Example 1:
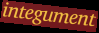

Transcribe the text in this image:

integument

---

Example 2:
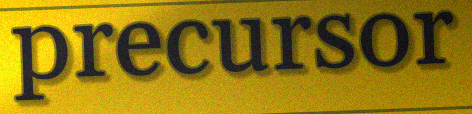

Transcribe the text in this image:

precursor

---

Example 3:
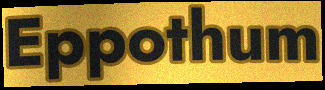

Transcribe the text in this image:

Eppothum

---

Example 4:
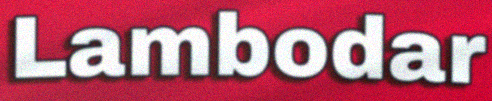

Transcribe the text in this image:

Lambodar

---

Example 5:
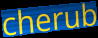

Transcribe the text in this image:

cherub